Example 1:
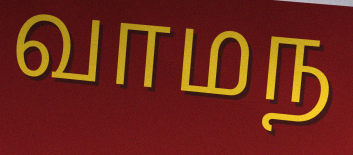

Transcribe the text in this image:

வாமந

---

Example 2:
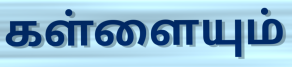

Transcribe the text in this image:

கள்ளையும்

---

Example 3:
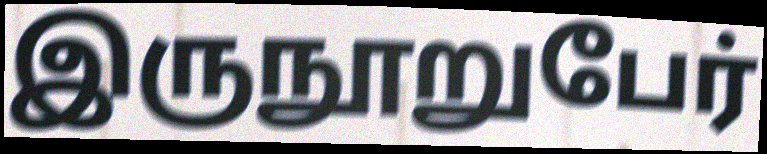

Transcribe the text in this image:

இருநூறுபேர்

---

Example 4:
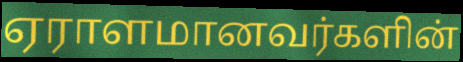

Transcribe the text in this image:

ஏராளமானவர்களின்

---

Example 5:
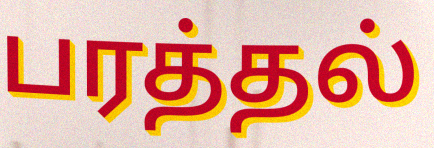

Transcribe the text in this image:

பரத்தல்